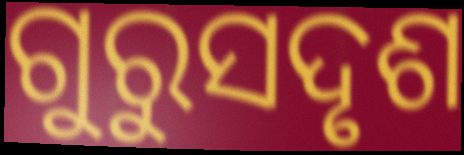
ଗୁରୁସଦୃଶ